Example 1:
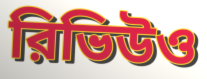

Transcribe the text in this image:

রিভিউও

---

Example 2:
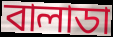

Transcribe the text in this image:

বালাডা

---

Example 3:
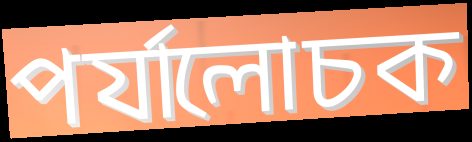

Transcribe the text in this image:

পর্যালোচক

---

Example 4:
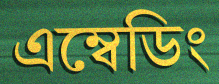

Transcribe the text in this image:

এম্বেডিং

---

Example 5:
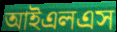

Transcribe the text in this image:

আইএলএস